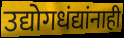
उद्योगधंद्यांनाही